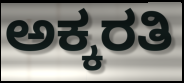
ಅಕ್ಕರತಿ